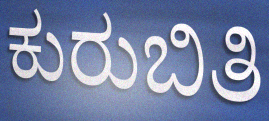
ಕುರುಬಿತಿ